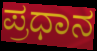
ಪ್ರಧಾನ